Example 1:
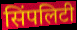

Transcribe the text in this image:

सिंपलिटी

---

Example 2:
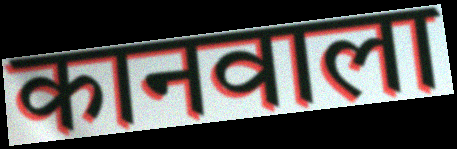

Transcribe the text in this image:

कानवाला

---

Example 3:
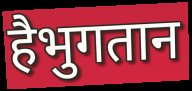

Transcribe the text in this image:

हैभुगतान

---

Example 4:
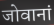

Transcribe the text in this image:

जोवानां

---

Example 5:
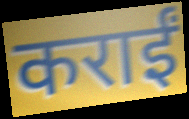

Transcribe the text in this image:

कराईं